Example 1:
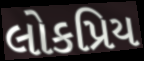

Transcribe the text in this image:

લોકપ્રિય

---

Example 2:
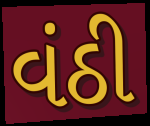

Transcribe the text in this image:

વંઠી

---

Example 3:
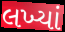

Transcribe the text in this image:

લખ્યાં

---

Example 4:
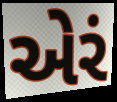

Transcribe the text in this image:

એરં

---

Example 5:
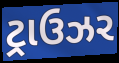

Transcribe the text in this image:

ટ્રાઉઝર